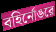
বহির্নোঙরে